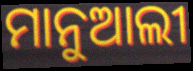
ମାନୁଆଲୀ